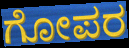
ಗೋಪರ